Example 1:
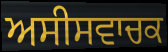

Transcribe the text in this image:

ਅਸੀਸਵਾਚਕ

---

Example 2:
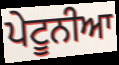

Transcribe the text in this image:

ਪੇਟੂਨੀਆ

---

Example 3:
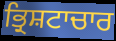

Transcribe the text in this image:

ਭ੍ਰਿਸ਼ਟਾਚਾਰ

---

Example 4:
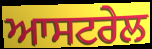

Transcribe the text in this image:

ਆਸਟਰੇਲ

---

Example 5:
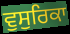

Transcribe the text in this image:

ਵੁਸੁਰਿਕਾ